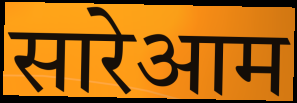
सारेआम